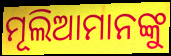
ମୂଲିଆମାନଙ୍କୁ